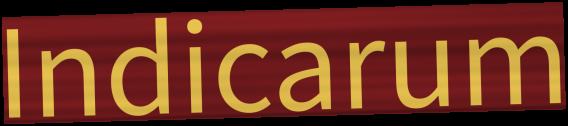
Indicarum